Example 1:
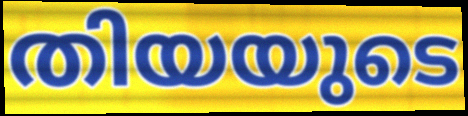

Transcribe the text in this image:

തിയയുടെ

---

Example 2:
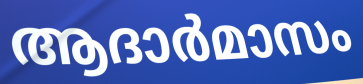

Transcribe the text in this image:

ആദാർമാസം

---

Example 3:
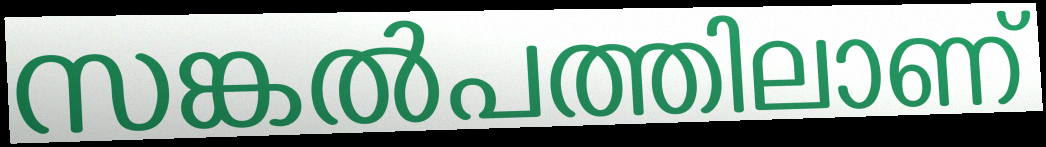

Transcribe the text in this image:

സങ്കൽപത്തിലാണ്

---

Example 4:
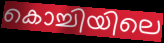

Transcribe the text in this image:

കൊച്ചിയിലെ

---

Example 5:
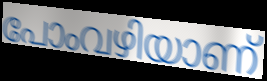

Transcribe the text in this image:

പോംവഴിയാണ്